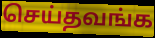
செய்தவங்க